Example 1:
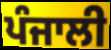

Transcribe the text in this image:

ਪੰਜਾਲੀ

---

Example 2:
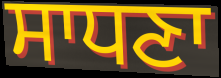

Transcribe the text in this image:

ਸਾਧਣਾ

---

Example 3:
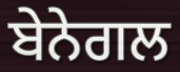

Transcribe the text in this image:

ਬੇਨੇਗਲ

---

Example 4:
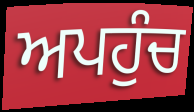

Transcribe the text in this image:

ਅਪਹੁੰਚ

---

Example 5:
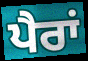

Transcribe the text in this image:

ਪੈਰਾਂ